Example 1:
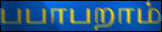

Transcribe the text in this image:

பபாபறாம்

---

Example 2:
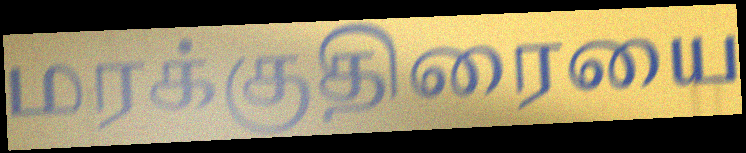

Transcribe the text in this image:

மரக்குதிரையை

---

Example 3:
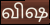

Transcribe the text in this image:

விஷ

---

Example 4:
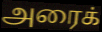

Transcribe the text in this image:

அரைக்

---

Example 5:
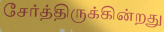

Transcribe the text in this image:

சேர்த்திருக்கின்றது